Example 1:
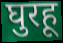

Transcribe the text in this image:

घुरहू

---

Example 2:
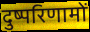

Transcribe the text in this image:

दुष्परिणामों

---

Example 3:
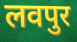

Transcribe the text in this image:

लवपुर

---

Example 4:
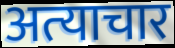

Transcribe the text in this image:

अत्‍याचार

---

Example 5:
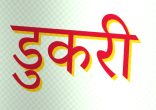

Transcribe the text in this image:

डुकरी